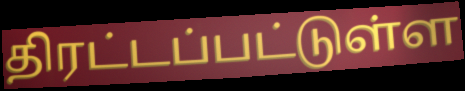
திரட்டப்பட்டுள்ள